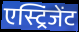
एस्ट्रिंजेंट